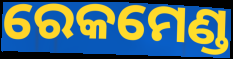
ରେକମେଣ୍ଡ